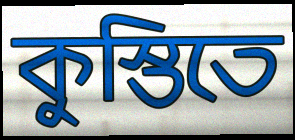
কুস্তিতে